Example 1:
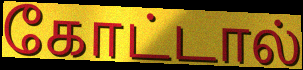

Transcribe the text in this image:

கோட்டால்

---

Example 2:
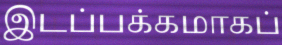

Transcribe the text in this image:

இடப்பக்கமாகப்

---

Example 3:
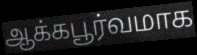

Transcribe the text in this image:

ஆக்கபூர்வமாக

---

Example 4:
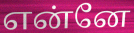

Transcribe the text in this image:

என்னே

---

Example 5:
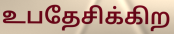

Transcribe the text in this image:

உபதேசிக்கிற